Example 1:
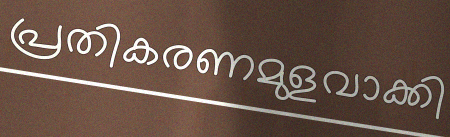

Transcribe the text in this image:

പ്രതികരണമുളവാക്കി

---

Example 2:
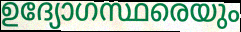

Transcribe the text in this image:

ഉദ്യോഗസ്ഥരെയും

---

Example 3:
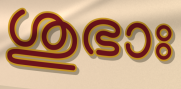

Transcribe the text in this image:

ശുഭാഃ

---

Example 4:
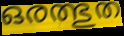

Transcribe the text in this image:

ഒരത്ഭുത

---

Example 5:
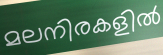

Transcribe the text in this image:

മലനിരകളിൽ